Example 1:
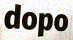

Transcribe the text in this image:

dopo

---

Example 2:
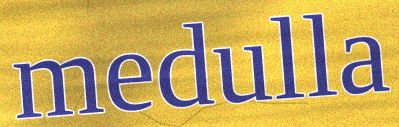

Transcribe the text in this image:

medulla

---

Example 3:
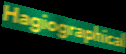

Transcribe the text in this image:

Hagiographical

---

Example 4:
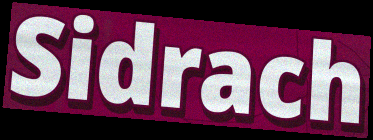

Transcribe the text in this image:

Sidrach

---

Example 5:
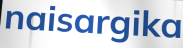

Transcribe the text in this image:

naisargika